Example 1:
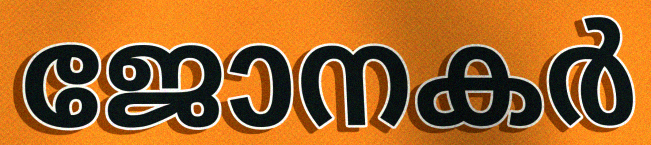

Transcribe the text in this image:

ജോനകർ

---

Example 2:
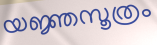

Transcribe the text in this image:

യജ്ഞസൂത്രം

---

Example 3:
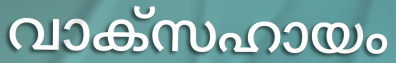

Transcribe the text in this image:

വാക്സഹായം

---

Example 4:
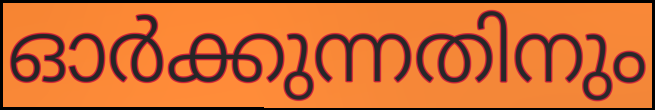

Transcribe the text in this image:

ഓർക്കുന്നതിനും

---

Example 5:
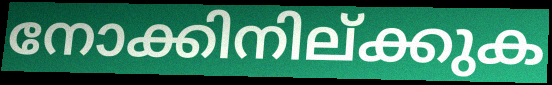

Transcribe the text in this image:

നോക്കിനില്ക്കുക